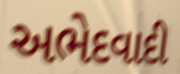
અભેદવાદી